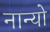
नान्यो